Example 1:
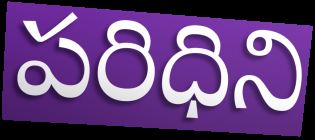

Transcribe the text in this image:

పరిధిని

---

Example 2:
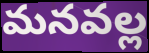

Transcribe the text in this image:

మనవల్ల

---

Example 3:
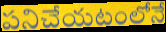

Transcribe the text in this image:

పనిచేయటంలోనే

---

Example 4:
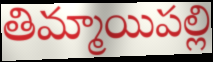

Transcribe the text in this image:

తిమ్మాయిపల్లి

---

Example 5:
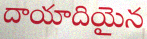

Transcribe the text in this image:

దాయాదియైన